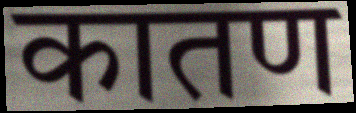
कातण